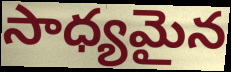
సాధ్యమైన